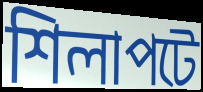
শিলাপটে